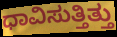
ಧಾವಿಸುತ್ತಿತ್ತು